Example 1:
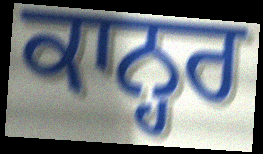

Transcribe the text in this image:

ਕਾਨ੍ਹਰ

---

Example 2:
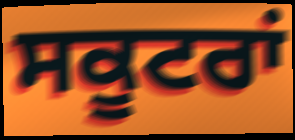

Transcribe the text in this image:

ਸਕੂਟਰਾਂ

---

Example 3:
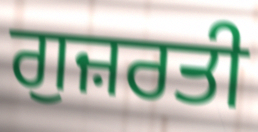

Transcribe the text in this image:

ਗੁਜ਼ਰਤੀ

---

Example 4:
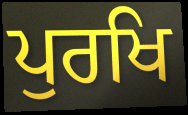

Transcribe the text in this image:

ਪੁਰਖਿ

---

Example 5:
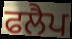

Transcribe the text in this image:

ਫਲੈਪ